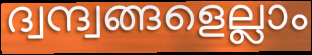
ദ്വന്ദ്വങ്ങളെല്ലാം